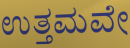
ಉತ್ತಮವೇ